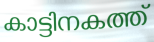
കാട്ടിനകത്ത്